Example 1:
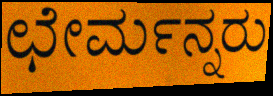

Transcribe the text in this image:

ಛೇರ್ಮನ್ನರು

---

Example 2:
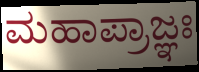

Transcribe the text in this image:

ಮಹಾಪ್ರಾಜ್ಞಃ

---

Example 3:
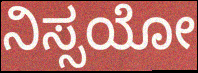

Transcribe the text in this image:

ನಿಸ್ಸಯೋ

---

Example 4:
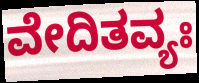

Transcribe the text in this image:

ವೇದಿತವ್ಯಃ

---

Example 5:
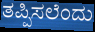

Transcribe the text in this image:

ತಪ್ಪಿಸಲೆಂದು